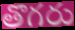
తొగరు